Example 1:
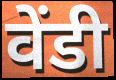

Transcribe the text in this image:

वेंडी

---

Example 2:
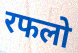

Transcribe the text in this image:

रफलो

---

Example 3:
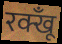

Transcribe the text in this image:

रक्खूँ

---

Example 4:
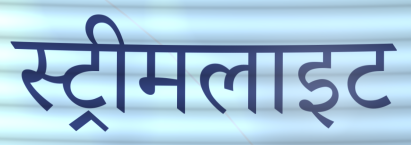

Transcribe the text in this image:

स्ट्रीमलाइट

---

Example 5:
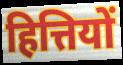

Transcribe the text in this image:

हित्तियों